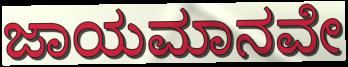
ಜಾಯಮಾನವೇ